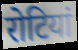
रोटियां